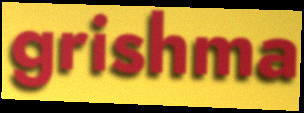
grishma